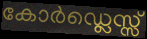
കോർഡ്ലെസ്സ്